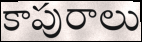
కాపురాలు